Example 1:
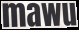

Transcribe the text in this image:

mawu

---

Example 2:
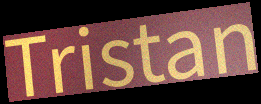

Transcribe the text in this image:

Tristan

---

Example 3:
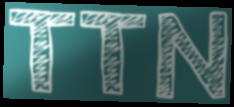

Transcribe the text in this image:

TTN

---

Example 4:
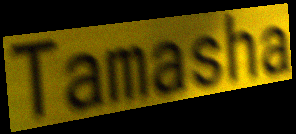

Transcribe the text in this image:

Tamasha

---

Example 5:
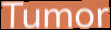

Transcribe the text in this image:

Tumor